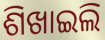
ଶିଖାଇଲି